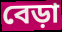
বেড়া